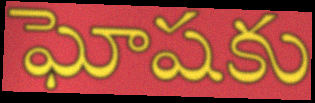
ఘోషకు